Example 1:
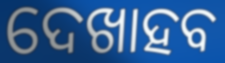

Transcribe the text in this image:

ଦେଖାହବ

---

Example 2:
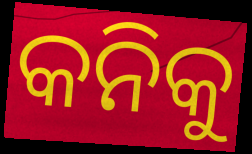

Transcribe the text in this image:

କନିକୁ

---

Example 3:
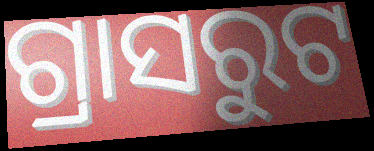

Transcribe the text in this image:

ଗ୍ରାସରୁଟ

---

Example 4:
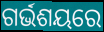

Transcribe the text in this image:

ଗର୍ଭଶୟରେ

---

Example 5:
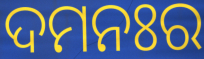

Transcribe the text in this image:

ଦମନଃର